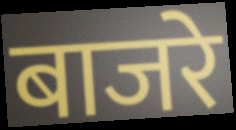
बाजरे